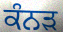
ਕੰਨਡ਼